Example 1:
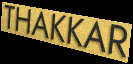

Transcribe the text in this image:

THAKKAR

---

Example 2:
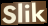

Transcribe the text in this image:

Slik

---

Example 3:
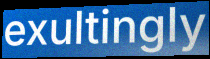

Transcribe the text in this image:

exultingly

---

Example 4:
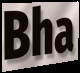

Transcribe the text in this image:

Bha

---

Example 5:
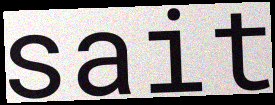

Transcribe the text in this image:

sait